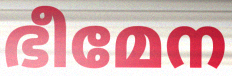
ഭീമേന